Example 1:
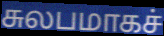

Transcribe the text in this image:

சுலபமாகச்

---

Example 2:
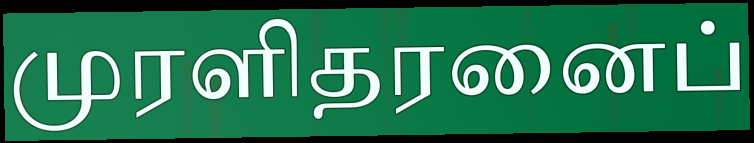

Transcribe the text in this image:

முரளிதரனைப்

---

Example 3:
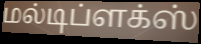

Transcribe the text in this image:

மல்டிப்ளக்ஸ்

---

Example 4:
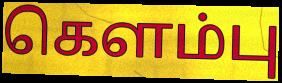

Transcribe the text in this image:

கௌம்பு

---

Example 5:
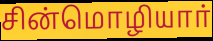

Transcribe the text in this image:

சின்மொழியார்